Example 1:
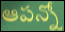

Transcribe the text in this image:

ఆపన్నో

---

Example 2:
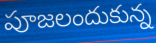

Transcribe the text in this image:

పూజలందుకున్న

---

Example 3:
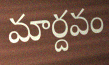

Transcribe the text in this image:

మార్దవం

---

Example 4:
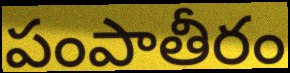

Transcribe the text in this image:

పంపాతీరం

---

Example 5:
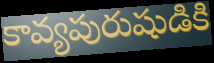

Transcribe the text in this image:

కావ్యపురుషుడికి